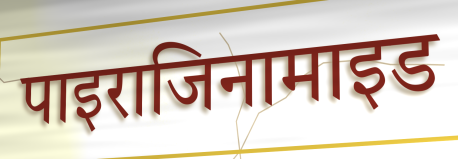
पाइराजिनामाइड